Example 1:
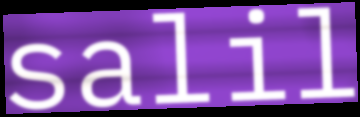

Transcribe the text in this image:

salil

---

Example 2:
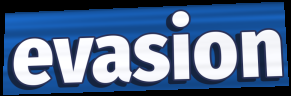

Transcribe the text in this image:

evasion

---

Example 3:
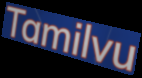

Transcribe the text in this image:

Tamilvu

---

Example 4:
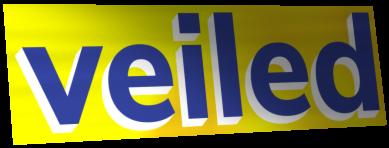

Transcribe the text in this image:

veiled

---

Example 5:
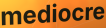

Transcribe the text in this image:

mediocre